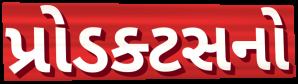
પ્રોડક્ટસનો